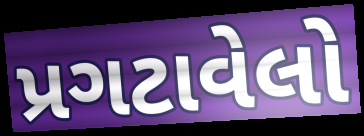
પ્રગટાવેલો